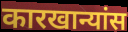
कारखान्यांस